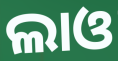
ଲାଓ